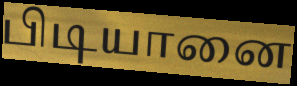
பிடியானை